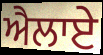
ਐਲਾਏ